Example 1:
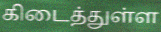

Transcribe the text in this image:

கிடைத்துள்ள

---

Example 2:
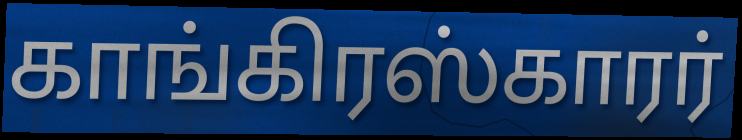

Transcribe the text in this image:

காங்கிரஸ்காரர்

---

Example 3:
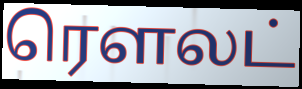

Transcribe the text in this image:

ரௌலட்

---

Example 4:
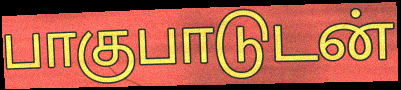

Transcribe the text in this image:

பாகுபாடுடன்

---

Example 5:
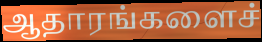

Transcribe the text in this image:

ஆதாரங்களைச்